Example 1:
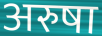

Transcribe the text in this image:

अरुषा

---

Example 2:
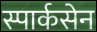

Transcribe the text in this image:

स्पार्कसेन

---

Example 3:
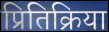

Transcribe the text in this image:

प्रितिक्रिया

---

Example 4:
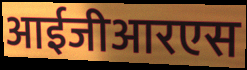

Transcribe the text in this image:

आईजीआरएस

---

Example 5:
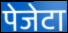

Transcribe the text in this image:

पेजेटा